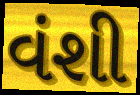
વંશી